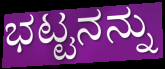
ಭಟ್ಟನನ್ನು